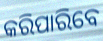
କରିପାରିବେ